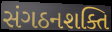
સંગઠનશક્તિ